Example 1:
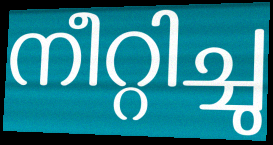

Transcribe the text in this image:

നീറ്റിച്ചു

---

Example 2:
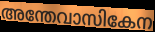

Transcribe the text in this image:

അന്തേവാസികേന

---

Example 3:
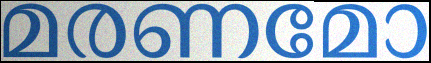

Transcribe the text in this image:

മരണമോ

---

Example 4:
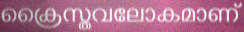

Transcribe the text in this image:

ക്രൈസ്തവലോകമാണ്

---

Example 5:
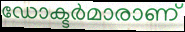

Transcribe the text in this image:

ഡോക്ടർമാരാണ്